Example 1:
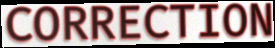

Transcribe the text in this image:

CORRECTION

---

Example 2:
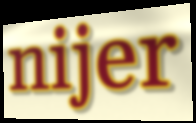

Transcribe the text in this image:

nijer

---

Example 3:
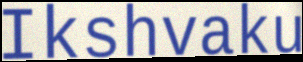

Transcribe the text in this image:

Ikshvaku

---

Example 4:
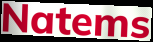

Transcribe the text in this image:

Natems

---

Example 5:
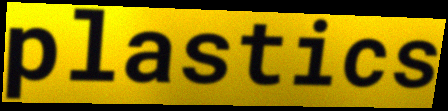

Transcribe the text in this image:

plastics